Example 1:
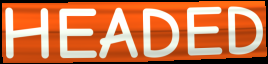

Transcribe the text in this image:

HEADED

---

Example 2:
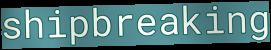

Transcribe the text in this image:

shipbreaking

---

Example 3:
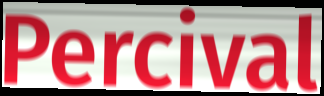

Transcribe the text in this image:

Percival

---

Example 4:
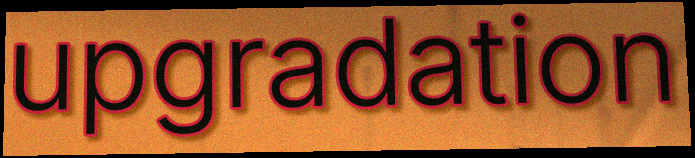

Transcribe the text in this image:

upgradation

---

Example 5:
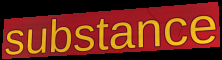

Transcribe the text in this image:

substance